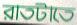
রাতটাতে